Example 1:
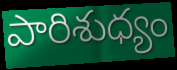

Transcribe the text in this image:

పారిశుధ్యం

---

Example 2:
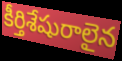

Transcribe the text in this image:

కీర్తిశేషురాలైన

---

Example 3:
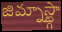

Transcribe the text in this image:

జిమ్నాస్ట్గా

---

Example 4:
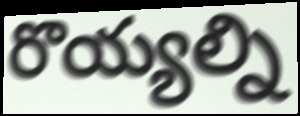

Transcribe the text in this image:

రొయ్యల్ని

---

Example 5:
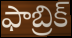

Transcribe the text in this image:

ఫాబ్రిక్